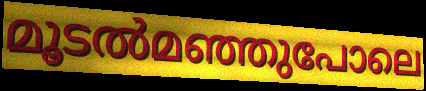
മൂടൽമഞ്ഞുപോലെ